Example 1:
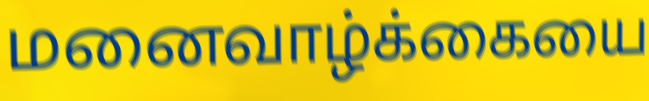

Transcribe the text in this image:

மனைவாழ்க்கையை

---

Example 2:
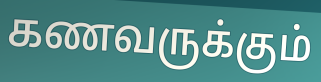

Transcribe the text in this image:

கணவருக்கும்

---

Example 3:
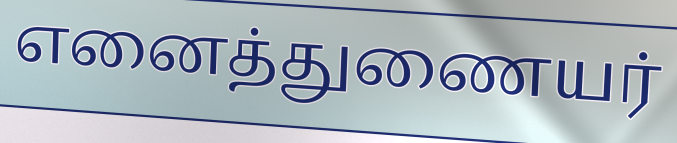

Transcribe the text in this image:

எனைத்துணையர்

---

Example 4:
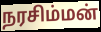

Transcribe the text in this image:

நரசிம்மன்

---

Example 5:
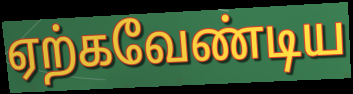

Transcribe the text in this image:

ஏற்கவேண்டிய